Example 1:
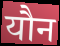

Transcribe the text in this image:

यौन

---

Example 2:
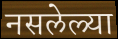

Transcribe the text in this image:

नसलेल्या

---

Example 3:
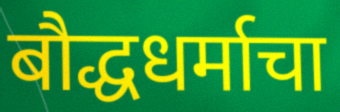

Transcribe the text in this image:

बौद्धधर्माचा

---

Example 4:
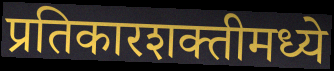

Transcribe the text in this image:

प्रतिकारशक्तीमध्ये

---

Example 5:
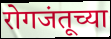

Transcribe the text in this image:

रोगजंतूच्या